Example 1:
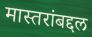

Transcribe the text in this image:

मास्तरांबद्दल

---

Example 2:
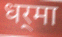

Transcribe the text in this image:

धर्मा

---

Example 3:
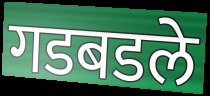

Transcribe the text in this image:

गडबडले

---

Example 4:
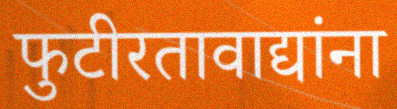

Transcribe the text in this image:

फुटीरतावाद्यांना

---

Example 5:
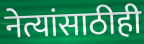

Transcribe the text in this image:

नेत्यांसाठीही